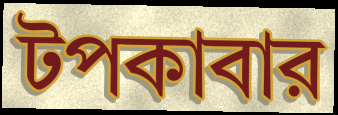
টপকাবার